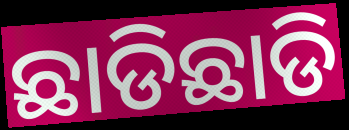
ଛାଡିଛାଡି